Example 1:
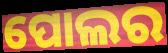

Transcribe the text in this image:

ପୋଲର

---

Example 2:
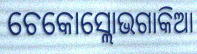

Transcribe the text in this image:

ଚେକୋସ୍ଲୋଭଗାକିଆ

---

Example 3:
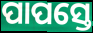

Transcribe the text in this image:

ପାପସ୍ତେ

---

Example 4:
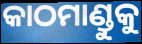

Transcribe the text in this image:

କାଠମାଣ୍ଡୁକୁ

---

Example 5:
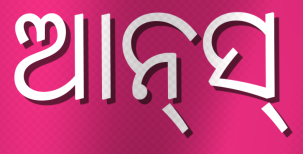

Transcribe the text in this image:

ଆନ୍‌ସ୍